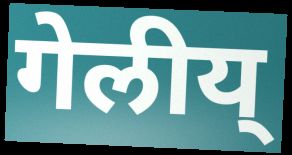
गेलीय्